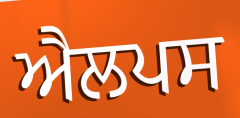
ਐਲਪਸ